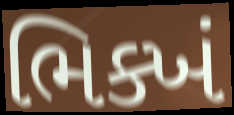
ભિક્ખં